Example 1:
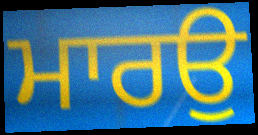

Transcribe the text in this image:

ਮਾਰਉ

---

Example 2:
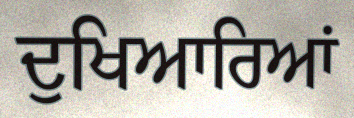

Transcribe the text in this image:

ਦੁਖਿਆਰਿਆਂ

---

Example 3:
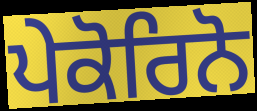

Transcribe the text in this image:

ਪੇਕੋਰਿਨੋ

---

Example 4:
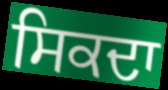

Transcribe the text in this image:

ਸਿਕਦਾ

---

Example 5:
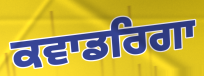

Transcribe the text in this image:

ਕਵਾਡਰਿਗਾ